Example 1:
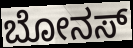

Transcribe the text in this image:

ಬೋನಸ್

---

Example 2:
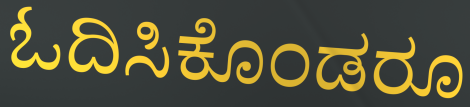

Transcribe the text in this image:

ಓದಿಸಿಕೊಂಡರೂ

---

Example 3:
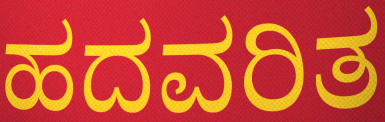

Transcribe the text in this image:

ಹದವರಿತ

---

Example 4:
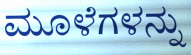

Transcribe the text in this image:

ಮೂಳೆಗಳನ್ನು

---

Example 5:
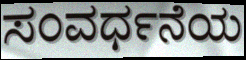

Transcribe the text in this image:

ಸಂವರ್ಧನೆಯ